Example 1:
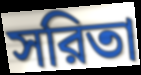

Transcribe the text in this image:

সরিতা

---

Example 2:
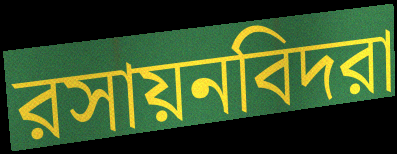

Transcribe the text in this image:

রসায়নবিদরা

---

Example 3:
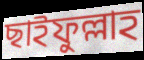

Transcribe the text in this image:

ছাইফুল্লাহ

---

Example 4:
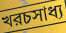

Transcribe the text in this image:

খরচসাধ্য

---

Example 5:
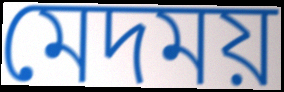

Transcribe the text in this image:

মেদময়